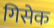
गिसेक